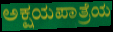
ಅಕ್ಷಯಪಾತ್ರೆಯ